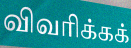
விவரிக்கக்